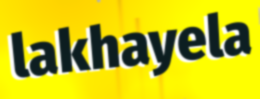
lakhayela